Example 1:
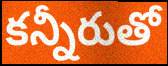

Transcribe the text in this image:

కన్నీరుతో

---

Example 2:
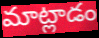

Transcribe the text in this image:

మాట్లాడం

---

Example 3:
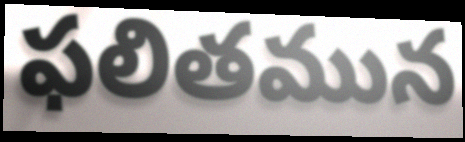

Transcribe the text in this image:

ఫలితమున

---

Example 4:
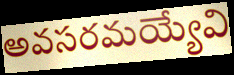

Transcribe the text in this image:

అవసరమయ్యేవి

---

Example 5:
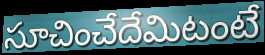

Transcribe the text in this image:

సూచించేదేమిటంటే